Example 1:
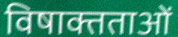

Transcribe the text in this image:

विषाक्तताओं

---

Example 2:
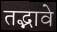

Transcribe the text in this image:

तद्भावे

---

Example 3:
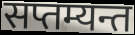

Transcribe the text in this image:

सप्तम्यन्त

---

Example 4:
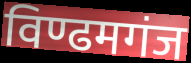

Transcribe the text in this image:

विण्ढमगंज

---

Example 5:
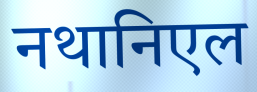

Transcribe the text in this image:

नथानिएल